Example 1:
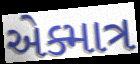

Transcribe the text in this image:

એક્માત્ર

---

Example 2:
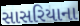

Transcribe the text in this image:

સાસરિયાના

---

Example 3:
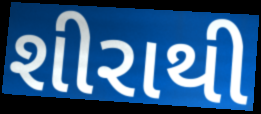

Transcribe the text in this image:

શીરાથી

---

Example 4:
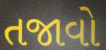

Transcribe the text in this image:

તજાવો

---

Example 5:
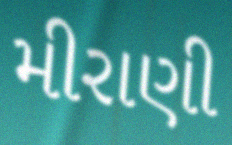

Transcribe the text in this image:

મીરાણી